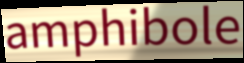
amphibole